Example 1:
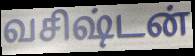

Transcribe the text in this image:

வசிஷ்டன்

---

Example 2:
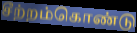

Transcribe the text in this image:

சீற்றம்கொண்டு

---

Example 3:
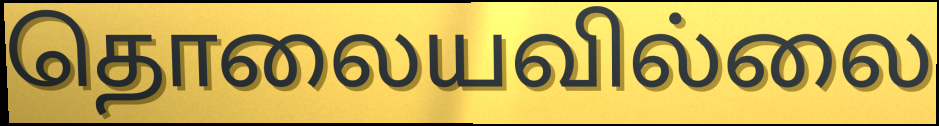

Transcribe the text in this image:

தொலையவில்லை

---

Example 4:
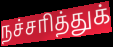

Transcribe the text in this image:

நச்சரித்துக்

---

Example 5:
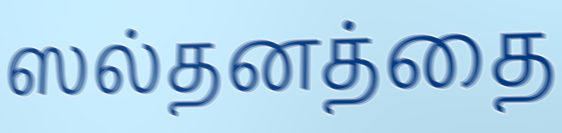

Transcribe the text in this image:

ஸல்தனத்தை